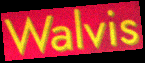
Walvis